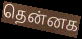
தென்னக